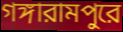
গঙ্গারামপুরে